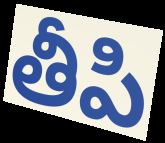
తీపి